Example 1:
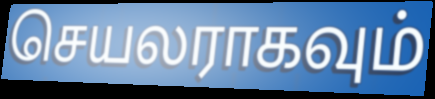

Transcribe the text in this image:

செயலராகவும்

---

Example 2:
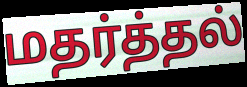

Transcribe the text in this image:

மதர்த்தல்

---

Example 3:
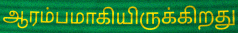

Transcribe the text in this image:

ஆரம்பமாகியிருக்கிறது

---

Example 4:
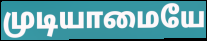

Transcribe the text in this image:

முடியாமையே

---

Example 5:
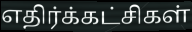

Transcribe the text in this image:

எதிர்க்கட்சிகள்